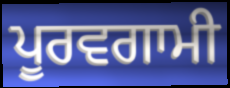
ਪੂਰਵਗਾਮੀ